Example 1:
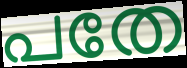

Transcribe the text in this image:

പതേ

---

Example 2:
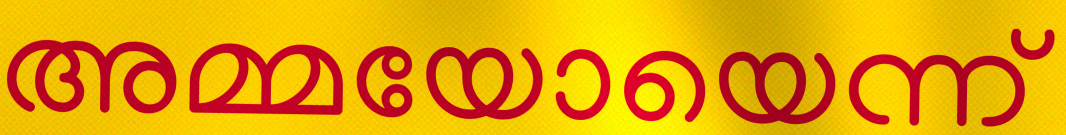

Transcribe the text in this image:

അമ്മയോയെന്ന്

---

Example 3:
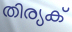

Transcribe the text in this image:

തിര്യക്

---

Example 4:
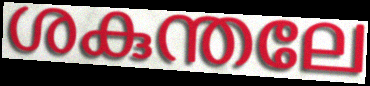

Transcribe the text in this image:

ശകുന്തലേ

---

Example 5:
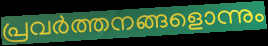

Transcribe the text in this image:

പ്രവർത്തനങ്ങളൊന്നും